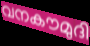
വനകൗമുദി